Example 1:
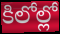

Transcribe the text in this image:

కిలోల్లో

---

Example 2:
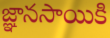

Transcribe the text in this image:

జ్ఞానసాయికి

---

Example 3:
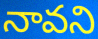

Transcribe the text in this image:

నావని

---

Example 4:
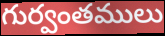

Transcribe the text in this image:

గుర్వంతములు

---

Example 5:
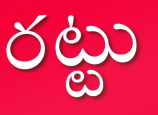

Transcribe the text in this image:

రట్టు